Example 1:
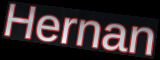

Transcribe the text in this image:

Hernan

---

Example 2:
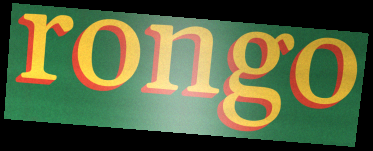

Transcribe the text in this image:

rongo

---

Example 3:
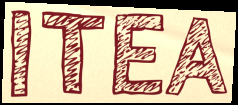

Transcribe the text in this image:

ITEA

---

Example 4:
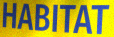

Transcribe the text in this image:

HABITAT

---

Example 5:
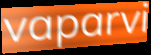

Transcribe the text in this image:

vaparvi